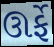
ઊર્ફે